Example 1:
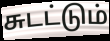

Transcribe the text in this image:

சுடட்டும்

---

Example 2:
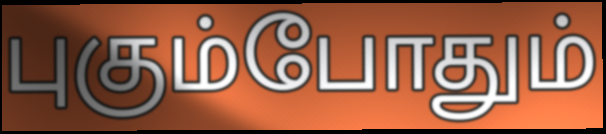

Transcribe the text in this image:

புகும்போதும்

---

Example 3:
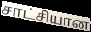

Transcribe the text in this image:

சாட்சியான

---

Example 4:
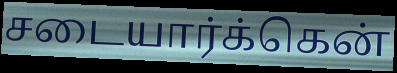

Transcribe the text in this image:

சடையார்க்கென்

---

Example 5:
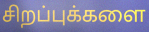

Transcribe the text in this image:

சிறப்புக்களை